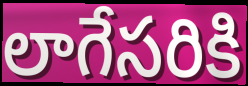
లాగేసరికి